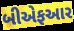
બીએફઆર